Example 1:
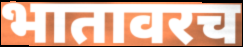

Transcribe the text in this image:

भातावरच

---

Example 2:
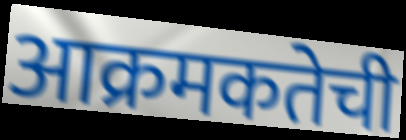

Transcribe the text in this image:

आक्रमकतेची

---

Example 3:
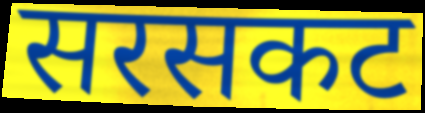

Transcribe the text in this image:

सरसकट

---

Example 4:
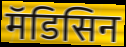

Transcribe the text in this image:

मॅडिसिन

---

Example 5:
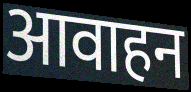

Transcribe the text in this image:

आवाहन